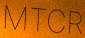
MTCR